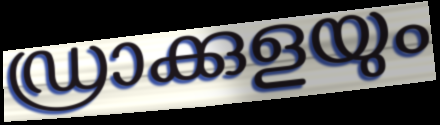
ഡ്രാക്കുളയും